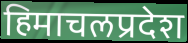
हिमाचलप्रदेश